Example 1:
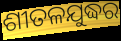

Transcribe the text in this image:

ଶୀତଳଯୁଦ୍ଧର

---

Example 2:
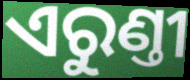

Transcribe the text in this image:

ଏରୁଣ୍ତୀ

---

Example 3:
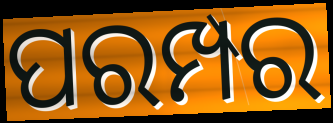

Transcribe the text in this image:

ପରମ୍ପର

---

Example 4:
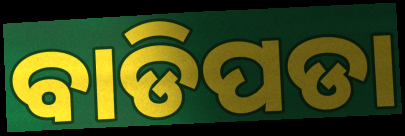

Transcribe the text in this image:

ବାଡିପଡା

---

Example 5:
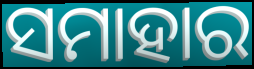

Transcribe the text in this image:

ସମାହାର